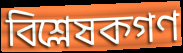
বিশ্লেষকগণ